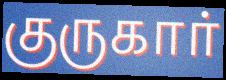
குருகார்